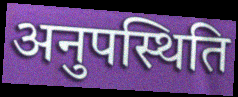
अनुपस्थिति